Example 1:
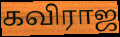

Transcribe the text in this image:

கவிராஜ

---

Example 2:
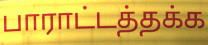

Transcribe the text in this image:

பாராட்டத்தக்க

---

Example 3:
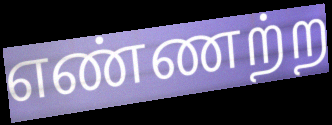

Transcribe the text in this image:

எண்ணற்ற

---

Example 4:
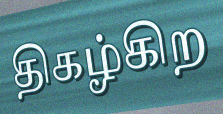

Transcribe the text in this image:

திகழ்கிற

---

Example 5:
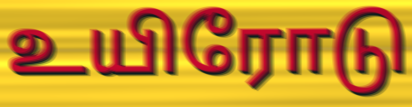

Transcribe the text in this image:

உயிரோடு